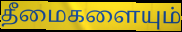
தீமைகளையும்